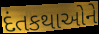
દંતકથાઓને